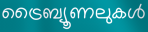
ട്രൈബ്യൂണലുകൾ